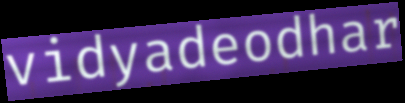
vidyadeodhar